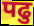
पढु